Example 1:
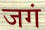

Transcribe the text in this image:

जगं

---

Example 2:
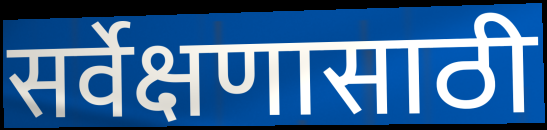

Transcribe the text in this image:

सर्वेक्षणासाठी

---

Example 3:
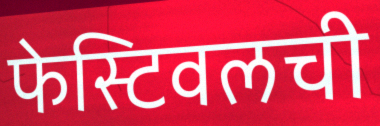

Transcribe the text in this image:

फेस्टिवलची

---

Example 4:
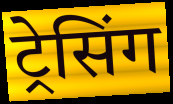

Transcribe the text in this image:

ट्रेसिंग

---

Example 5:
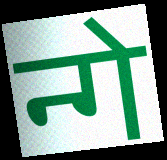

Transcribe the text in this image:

न्गे